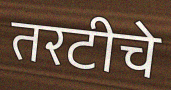
तरटीचे